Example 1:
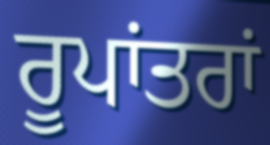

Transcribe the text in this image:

ਰੂਪਾਂਤਰਾਂ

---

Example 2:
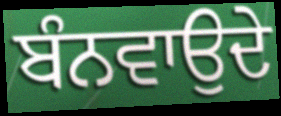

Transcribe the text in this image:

ਬੰਨਵਾਉਦੇ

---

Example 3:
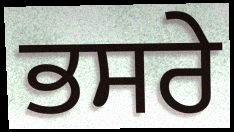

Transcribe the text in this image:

ਭਸਰੇ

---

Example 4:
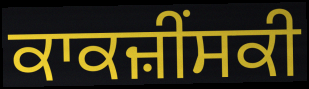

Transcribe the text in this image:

ਕਾਕਜ਼ੀੰਸਕੀ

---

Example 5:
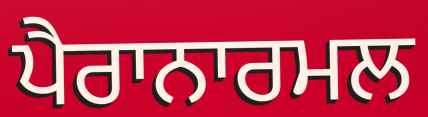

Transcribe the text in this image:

ਪੈਰਾਨਾਰਮਲ